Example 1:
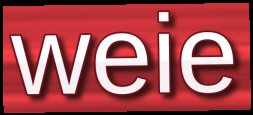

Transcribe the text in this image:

weie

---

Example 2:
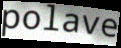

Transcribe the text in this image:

polave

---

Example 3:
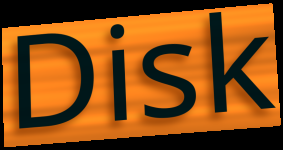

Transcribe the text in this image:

Disk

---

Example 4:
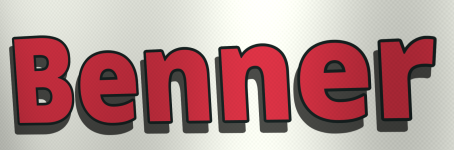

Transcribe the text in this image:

Benner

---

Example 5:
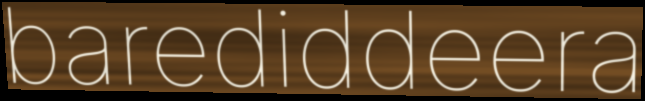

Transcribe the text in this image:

barediddeera